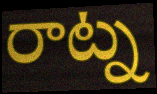
రాట్న